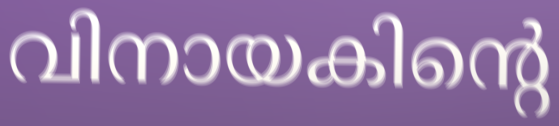
വിനായകിന്റെ